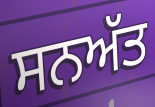
ਸਨਅੱਤ